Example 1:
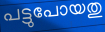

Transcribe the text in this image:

പട്ടുപോയതു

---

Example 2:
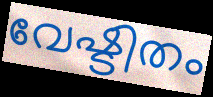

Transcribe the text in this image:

വേഷ്ടിതം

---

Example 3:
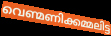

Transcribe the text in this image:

വെണ്മണിക്കമ്മലിട്ട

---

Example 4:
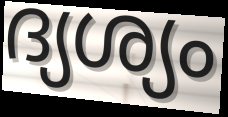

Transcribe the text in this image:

ദ്യശ്യം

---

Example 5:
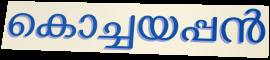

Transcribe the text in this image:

കൊച്ചയപ്പൻ